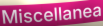
Miscellanea